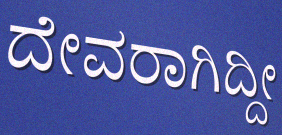
ದೇವರಾಗಿದ್ದೀ